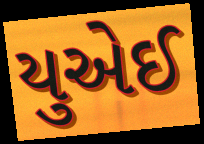
યુએઈ